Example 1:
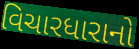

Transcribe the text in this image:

વિચારધારાનો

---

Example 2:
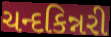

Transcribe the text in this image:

ચન્દકિન્નરી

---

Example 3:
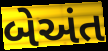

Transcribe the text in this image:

બેઅંત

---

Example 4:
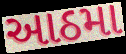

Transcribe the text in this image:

આઠમા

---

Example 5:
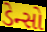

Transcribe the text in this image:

ડેન્સો